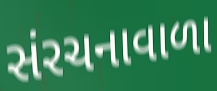
સંરચનાવાળા